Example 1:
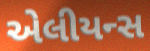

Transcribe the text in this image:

એલીયન્સ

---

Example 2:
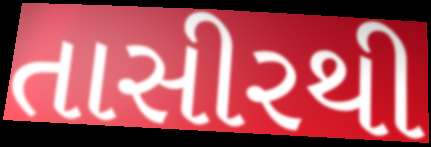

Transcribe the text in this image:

તાસીરથી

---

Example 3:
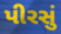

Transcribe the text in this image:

પીરસું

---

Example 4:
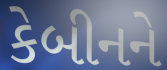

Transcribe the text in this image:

કેબીનને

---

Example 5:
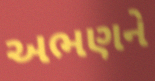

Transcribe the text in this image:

અભણને